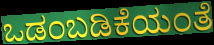
ಒಡಂಬಡಿಕೆಯಂತೆ